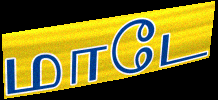
மாடே